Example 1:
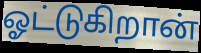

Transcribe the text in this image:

ஓட்டுகிறான்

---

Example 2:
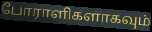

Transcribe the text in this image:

போராளிகளாகவும்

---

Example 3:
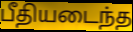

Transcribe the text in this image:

பீதியடைந்த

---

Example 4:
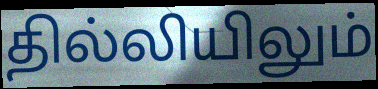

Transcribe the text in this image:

தில்லியிலும்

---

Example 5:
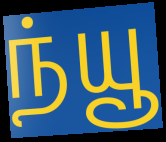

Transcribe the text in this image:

ந்யூ